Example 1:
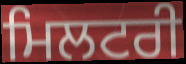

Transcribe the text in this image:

ਮਿਲਟਰੀ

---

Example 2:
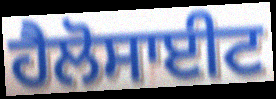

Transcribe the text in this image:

ਹੈਲੋਸਾਈਟ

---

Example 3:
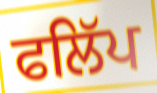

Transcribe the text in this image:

ਫਲਿੱਪ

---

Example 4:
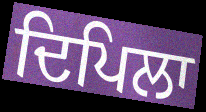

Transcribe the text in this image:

ਦਿਪਿਲਾ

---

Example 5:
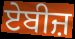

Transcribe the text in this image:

ਏਬੀਜ਼